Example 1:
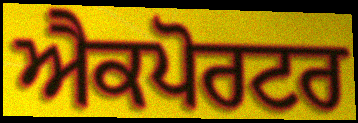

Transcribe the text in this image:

ਐਕਪੋਰਟਰ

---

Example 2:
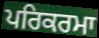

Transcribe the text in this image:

ਪਰਿਕਰਮਾ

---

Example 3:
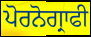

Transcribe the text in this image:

ਪੋਰਨੋਗ੍ਰਾਫੀ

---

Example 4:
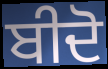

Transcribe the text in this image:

ਬੀਦੋ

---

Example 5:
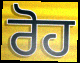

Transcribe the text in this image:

ਰੋਹ